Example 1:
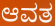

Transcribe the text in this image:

ಆವತ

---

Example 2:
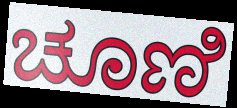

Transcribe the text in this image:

ಚೂಣಿ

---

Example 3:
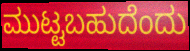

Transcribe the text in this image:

ಮುಟ್ಟಬಹುದೆಂದು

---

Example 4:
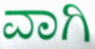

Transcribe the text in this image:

ವಾಗಿ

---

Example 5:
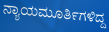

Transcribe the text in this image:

ನ್ಯಾಯಮೂರ್ತಿಗಳಿದ್ದ